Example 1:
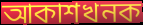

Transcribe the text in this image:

আকাশখনক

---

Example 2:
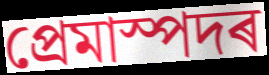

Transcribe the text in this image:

প্ৰেমাস্পদৰ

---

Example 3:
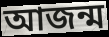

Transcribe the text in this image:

আজন্ম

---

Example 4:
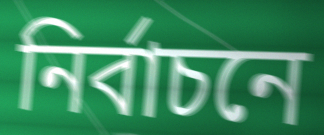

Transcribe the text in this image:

নিৰ্বাচনে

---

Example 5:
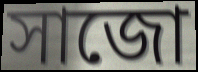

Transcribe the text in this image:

সাজো